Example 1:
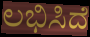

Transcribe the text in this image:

ಲಭಿಸಿದೆ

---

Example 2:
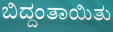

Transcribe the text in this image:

ಬಿದ್ದಂತಾಯಿತು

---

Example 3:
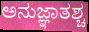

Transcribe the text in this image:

ಅನುಜ್ಞಾತಶ್ಚ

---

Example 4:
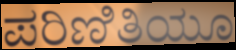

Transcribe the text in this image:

ಪರಿಣಿತಿಯೂ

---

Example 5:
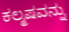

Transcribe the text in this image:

ಕಲ್ಮಷವನ್ನು